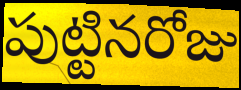
పుట్టినరోజు